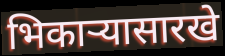
भिकार्‍यासारखे